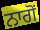
ਨਾਗੋਂ